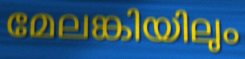
മേലങ്കിയിലും